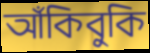
আঁকিবুকি